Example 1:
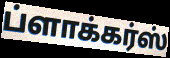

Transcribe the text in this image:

ப்ளாக்கர்ஸ்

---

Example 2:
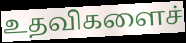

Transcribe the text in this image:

உதவிகளைச்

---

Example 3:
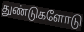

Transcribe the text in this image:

துண்டுகளோடு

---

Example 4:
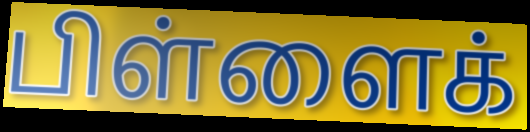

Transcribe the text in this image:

பிள்ளைக்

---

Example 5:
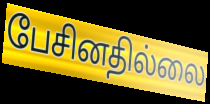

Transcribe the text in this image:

பேசினதில்லை